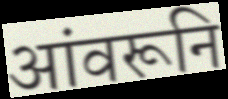
आंवरूनि